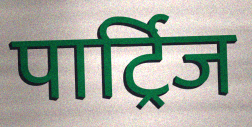
पार्ट्रिज